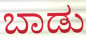
ಬಾಡು